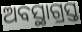
ଅବସ୍ଥାଗ୍ରସ୍ତ